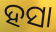
ହସା